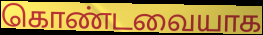
கொண்டவையாக